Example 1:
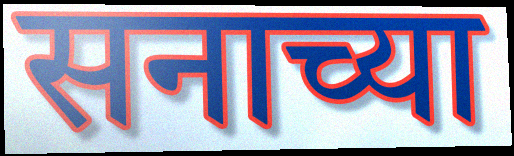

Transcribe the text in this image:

सनाच्या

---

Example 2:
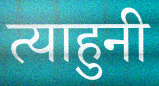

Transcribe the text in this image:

त्याहुनी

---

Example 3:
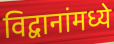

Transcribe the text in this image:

विद्वानांमध्ये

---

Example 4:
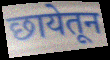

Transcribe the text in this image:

छायेतून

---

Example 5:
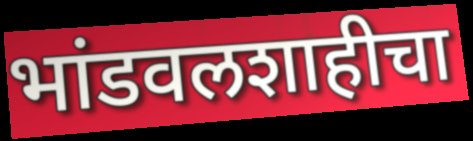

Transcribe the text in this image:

भांडवलशाहीचा